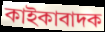
কাইকাবাদক